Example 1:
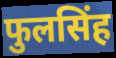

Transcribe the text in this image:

फुलसिंह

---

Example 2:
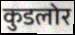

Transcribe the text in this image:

कुडलोर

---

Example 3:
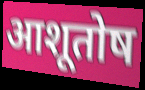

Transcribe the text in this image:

आशूतोष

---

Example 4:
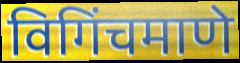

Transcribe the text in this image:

विगिंचमाणे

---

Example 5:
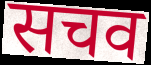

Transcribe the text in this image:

सचव